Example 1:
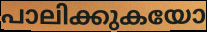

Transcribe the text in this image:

പാലിക്കുകയോ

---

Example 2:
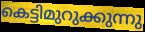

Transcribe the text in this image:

കെട്ടിമുറുക്കുന്നു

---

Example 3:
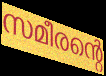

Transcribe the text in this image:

സമീരന്റെ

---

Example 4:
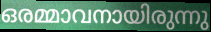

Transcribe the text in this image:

ഒരമ്മാവനായിരുന്നു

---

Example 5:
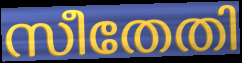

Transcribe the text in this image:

സീതേതി